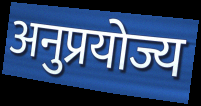
अनुप्रयोज्य